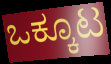
ಒಕ್ಕೂಟ